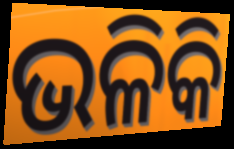
ଭଳିକି